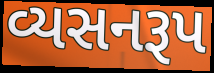
વ્યસનરૂપ